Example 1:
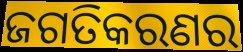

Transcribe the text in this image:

ଜଗତିକରଣର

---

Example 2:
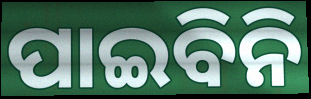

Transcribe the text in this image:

ପାଇବିନି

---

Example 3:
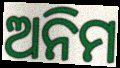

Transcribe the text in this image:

ଅନିମ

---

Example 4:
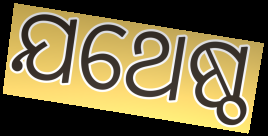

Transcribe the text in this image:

ଯଥେଷ୍ଠ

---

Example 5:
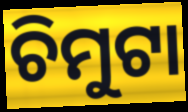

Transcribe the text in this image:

ଚିମୁଟା